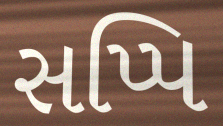
સપ્પિ